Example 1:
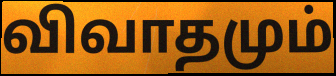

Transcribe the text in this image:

விவாதமும்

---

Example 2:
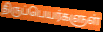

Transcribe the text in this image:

திருப்பெயர்களுள்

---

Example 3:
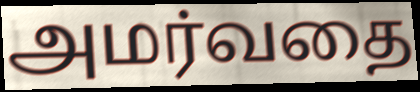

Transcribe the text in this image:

அமர்வதை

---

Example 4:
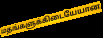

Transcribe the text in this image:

மதங்களுக்கிடையேயான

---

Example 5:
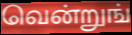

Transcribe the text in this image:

வென்றுங்